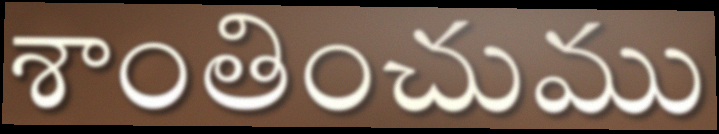
శాంతించుము